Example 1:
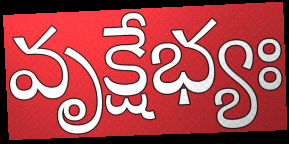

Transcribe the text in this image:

వృక్షేభ్యః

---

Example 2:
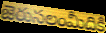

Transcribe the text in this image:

జెరుసలంమీదికి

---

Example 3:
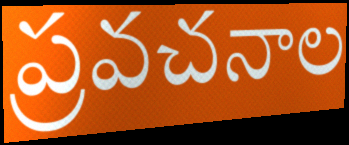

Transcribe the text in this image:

ప్రవచనాల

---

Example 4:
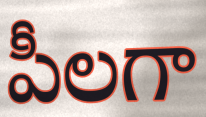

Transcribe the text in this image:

పీలగా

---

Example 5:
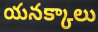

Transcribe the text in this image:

యనక్కాలు